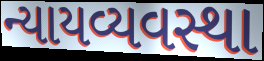
ન્યાયવ્યવસ્થા